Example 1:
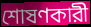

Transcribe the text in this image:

শোষণকারী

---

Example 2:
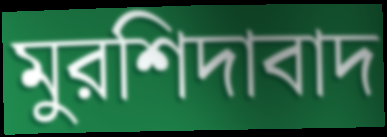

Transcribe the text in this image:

মুরশিদাবাদ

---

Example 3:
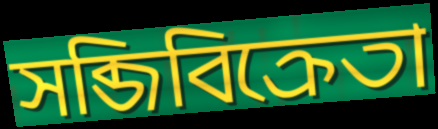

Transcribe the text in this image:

সব্জিবিক্রেতা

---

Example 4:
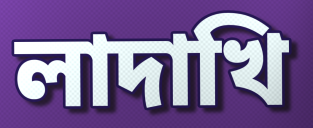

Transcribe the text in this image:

লাদাখি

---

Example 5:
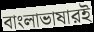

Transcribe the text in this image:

বাংলাভাষারই